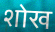
शोख